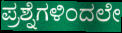
ಪ್ರಶ್ನೆಗಳಿಂದಲೇ